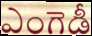
ఎంగెడీ